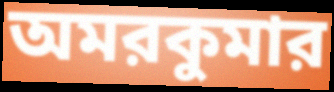
অমরকুমার